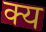
क्य